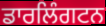
ਡਾਰਲਿੰਗਟਨ